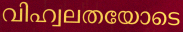
വിഹ്വലതയോടെ